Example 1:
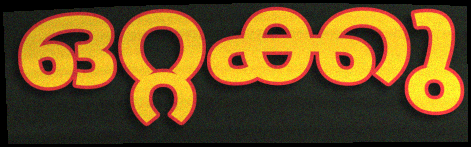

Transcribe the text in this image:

ഒറ്റക്കു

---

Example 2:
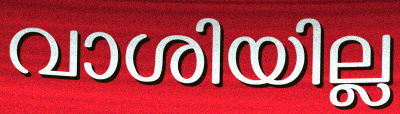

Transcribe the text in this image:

വാശിയില്ല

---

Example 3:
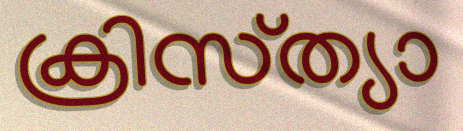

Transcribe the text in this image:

ക്രിസ്‌ത്യാ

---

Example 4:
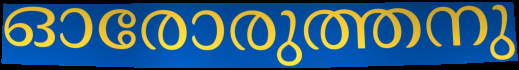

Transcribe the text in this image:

ഓരോരുത്തനു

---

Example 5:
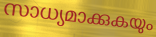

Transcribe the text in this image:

സാധ്യമാക്കുകയും